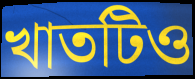
খাতটিও